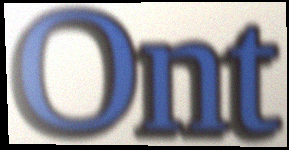
Ont